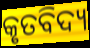
କୃତବିଦ୍ଯ